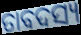
ତାବଦସ୍ୟ